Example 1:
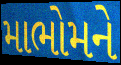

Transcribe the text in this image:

માભોમને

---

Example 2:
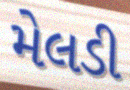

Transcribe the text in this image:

મેલડી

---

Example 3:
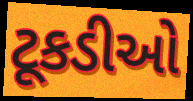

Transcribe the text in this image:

ટૂકડીઓ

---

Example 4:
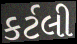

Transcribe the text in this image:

કર્ટલી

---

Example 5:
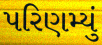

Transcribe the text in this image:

પરિણમ્યું